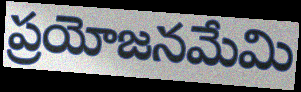
ప్రయోజనమేమి